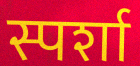
स्पर्शा